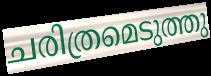
ചരിത്രമെടുത്തു